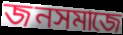
জনসমাজে